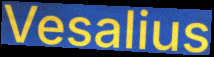
Vesalius